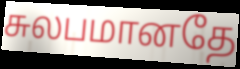
சுலபமானதே